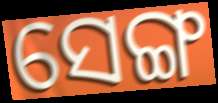
ସେଙ୍ଗ